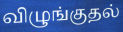
விழுங்குதல்